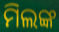
ମିଲଙ୍କ